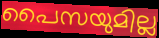
പൈസയുമില്ല